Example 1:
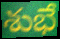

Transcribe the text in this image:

శుభే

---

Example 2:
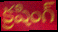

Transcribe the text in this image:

క్రషింగ్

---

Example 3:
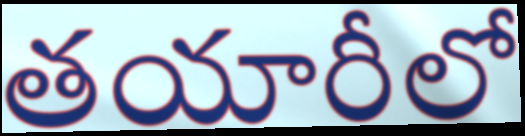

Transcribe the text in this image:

తయారీలో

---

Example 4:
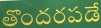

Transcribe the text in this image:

తొందరపడే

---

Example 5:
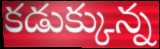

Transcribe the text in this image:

కడుక్కున్న